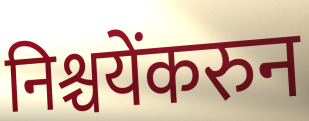
निश्चयेंकरुन